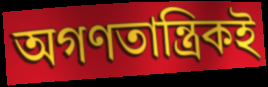
অগণতান্ত্রিকই